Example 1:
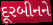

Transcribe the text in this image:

દૂરબીનને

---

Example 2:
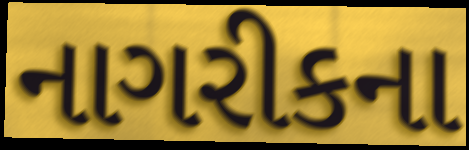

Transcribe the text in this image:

નાગરીકના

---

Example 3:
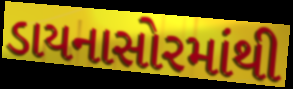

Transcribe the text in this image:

ડાયનાસોરમાંથી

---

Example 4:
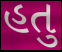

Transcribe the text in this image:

હતુ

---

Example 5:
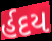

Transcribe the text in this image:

ર્હદય